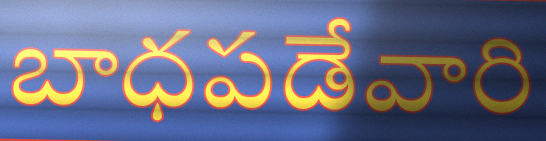
బాధపడేవారి